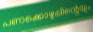
പണക്കൊഴുപ്പിന്റെയും